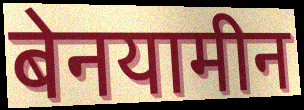
बेनयामीन